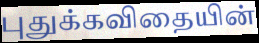
புதுக்கவிதையின்